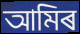
আমিৰ